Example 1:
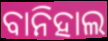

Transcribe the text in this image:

ବାନିହାଲ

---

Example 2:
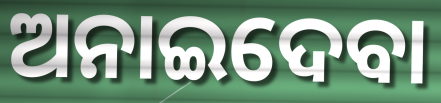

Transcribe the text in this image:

ଅନାଇଦେବା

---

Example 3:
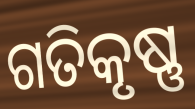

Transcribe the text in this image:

ଗତିକୃଷ୍ଣ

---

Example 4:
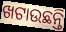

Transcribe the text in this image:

ଖଟାଉଛନ୍ତି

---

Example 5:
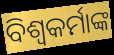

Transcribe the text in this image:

ବିଶ୍ୱକର୍ମାଙ୍କ